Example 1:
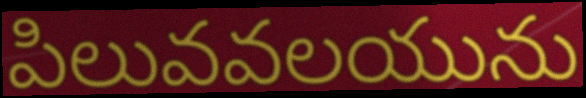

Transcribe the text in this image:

పిలువవలయును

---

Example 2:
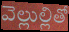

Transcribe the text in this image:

వెల్లుల్లితో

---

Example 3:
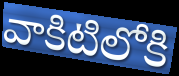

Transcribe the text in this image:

వాకిటిలోకి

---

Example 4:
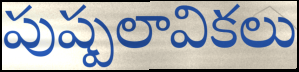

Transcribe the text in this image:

పుష్పలావికలు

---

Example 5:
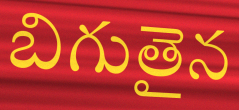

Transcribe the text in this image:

బిగుతైన